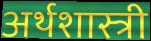
अर्थशास्त्री